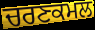
ਚਰਣਕਮਲ